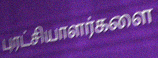
புரட்சியாளர்களை